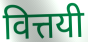
वित्तयी